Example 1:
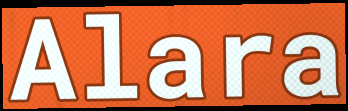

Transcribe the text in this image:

Alara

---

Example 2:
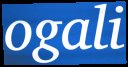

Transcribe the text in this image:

ogali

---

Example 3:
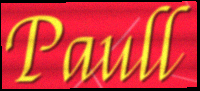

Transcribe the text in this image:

Paull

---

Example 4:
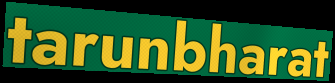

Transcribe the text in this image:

tarunbharat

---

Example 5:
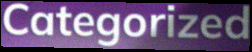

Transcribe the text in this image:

Categorized